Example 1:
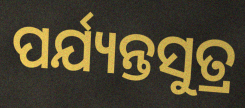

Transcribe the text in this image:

ପର୍ଯ୍ୟନ୍ତସୁତ୍ର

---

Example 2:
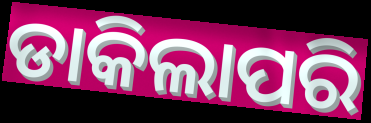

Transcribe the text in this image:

ଡାକିଲାପରି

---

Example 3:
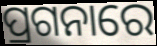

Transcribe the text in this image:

ପ୍ରଗନାରେ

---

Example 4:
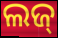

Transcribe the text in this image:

ଲଜ୍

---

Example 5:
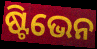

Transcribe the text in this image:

ଷ୍ଟିଭେନ